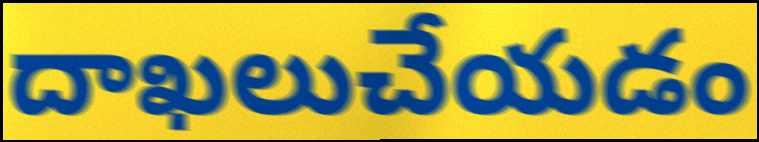
దాఖలుచేయడం